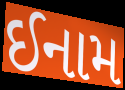
ઈનામ